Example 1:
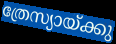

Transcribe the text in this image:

ത്രേസ്യായ്ക്കു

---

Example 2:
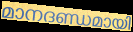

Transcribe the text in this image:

മാനദണ്ഡമായി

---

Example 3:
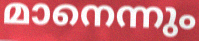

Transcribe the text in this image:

മാനെന്നും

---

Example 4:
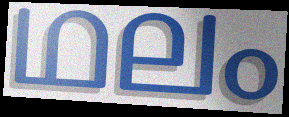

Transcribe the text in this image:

ഥലം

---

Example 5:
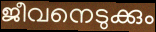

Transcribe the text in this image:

ജീവനെടുക്കും